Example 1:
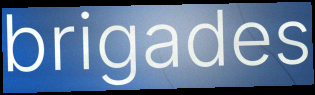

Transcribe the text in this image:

brigades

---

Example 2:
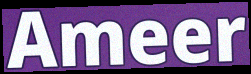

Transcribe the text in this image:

Ameer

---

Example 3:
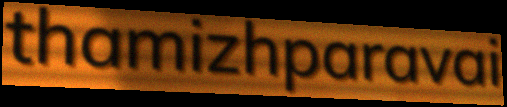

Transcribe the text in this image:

thamizhparavai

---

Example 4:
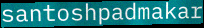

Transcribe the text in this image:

santoshpadmakar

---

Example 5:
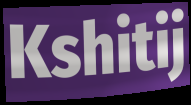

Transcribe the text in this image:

Kshitij